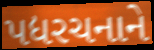
પદ્યરચનાને